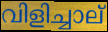
വിളിച്ചാല്